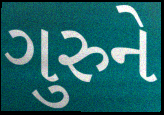
ગુરુને